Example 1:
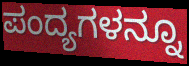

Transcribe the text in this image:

ಪಂದ್ಯಗಳನ್ನೂ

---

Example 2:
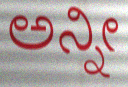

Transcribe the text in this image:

ಅನ್ನೀ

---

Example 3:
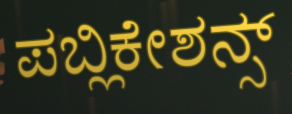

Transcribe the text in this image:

ಪಬ್ಲಿಕೇಶನ್ಸ್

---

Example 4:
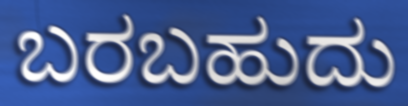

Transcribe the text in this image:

ಬರಬಹುದು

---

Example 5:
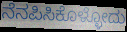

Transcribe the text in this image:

ನೆನಪಿಸಿಕೊಳ್ಳೋದು